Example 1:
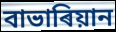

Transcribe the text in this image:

বাভাৰিয়ান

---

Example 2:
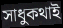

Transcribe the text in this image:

সাধুকথাই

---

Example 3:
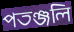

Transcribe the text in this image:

পতঞ্জলি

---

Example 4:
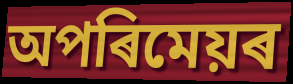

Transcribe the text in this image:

অপৰিমেয়ৰ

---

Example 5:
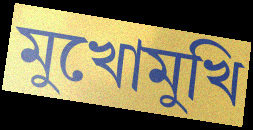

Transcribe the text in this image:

মুখোমুখি